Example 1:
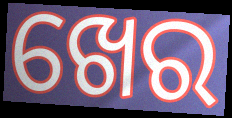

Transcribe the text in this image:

ଖେର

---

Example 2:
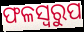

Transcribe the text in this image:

ଫଳସ୍ୱରୁପ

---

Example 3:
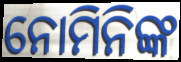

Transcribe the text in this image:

ନୋମିନିଙ୍କ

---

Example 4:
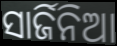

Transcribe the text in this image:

ସାର୍ଜିନିଆ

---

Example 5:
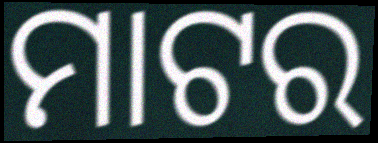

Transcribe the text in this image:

ମାଟର